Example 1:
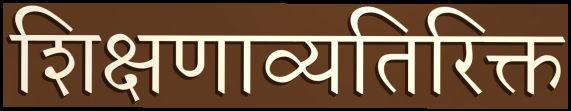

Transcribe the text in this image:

शिक्षणाव्यतिरिक्त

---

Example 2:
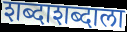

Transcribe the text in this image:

शब्दाशब्दाला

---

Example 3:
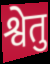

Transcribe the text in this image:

श्वेतु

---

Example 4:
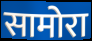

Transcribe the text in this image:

सामोरा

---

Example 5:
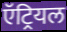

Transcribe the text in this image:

ऍट्रियल